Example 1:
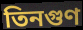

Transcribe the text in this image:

তিনগুণ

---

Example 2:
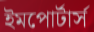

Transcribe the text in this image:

ইমপোর্টার্স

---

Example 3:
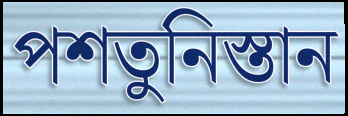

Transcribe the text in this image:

পশতুনিস্তান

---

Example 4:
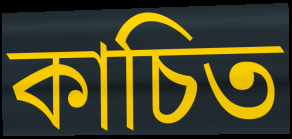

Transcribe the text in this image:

কাচিত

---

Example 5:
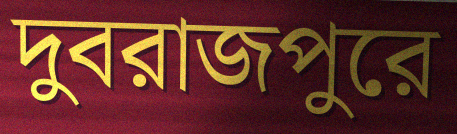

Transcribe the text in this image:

দুবরাজপুরে